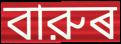
বাৰুৰ